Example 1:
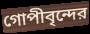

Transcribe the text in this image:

গোপীবৃন্দের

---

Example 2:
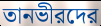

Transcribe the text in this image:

তানভীরদের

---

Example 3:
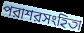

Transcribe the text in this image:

পরাশরসংহিতা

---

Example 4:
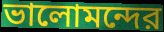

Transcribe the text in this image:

ভালোমন্দের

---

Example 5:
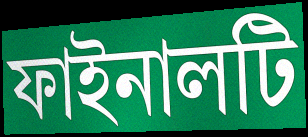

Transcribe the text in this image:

ফাইনালটি